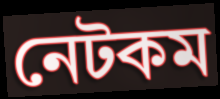
নেটকম